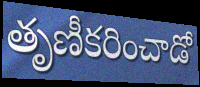
తృణీకరించాడో